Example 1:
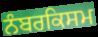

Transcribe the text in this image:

ਨੰਬਰਕਿਸਮ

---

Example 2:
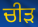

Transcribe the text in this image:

ਚੀੜ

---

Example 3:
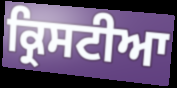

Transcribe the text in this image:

ਕ੍ਰਿਸਟੀਆ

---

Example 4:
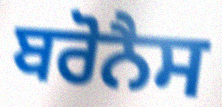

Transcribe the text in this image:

ਬਰੋਨੈਸ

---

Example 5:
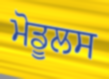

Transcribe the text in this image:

ਮੋਡੂਲਸ